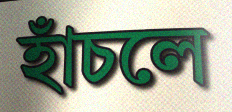
হাঁচলে